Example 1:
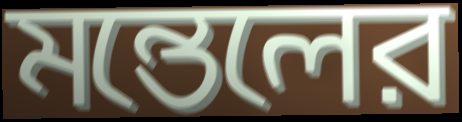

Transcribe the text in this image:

মন্তেলের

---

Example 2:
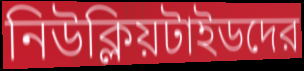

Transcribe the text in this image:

নিউক্লিয়টাইডদের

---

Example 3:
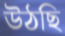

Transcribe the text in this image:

উঠছি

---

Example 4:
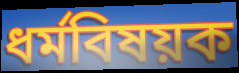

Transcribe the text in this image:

ধর্মবিষয়ক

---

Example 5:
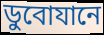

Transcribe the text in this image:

ডুবোযানে